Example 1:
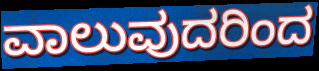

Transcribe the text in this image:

ವಾಲುವುದರಿಂದ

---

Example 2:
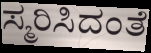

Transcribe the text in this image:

ಸ್ಮರಿಸಿದಂತೆ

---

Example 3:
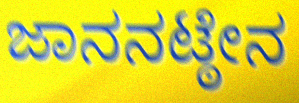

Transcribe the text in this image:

ಜಾನನಟ್ಠೇನ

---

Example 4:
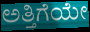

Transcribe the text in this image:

ಅತ್ತಿಗೆಯೇ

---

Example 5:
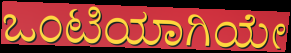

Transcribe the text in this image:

ಒಂಟಿಯಾಗಿಯೇ